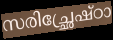
സരിച്ഛ്രേഷ്ഠാ